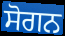
ਸੋਗਨ